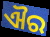
ଐର